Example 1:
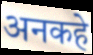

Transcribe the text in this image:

अनकहे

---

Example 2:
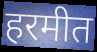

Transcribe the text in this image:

हरमीत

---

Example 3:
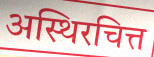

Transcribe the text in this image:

अस्थिरचित्त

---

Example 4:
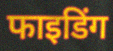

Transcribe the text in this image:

फाइडिंग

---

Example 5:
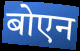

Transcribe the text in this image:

बोएन